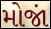
મોજાં